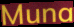
Muna